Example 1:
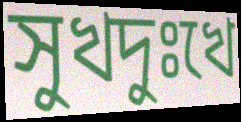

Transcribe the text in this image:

সুখদুঃখে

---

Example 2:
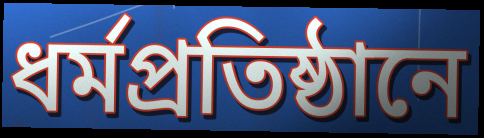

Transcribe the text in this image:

ধর্মপ্রতিষ্ঠানে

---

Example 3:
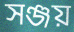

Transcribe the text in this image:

সঞ্জয়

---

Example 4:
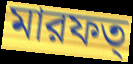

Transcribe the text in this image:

মারফত্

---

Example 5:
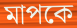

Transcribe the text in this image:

মাপকে